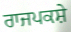
ਰਾਜਪਕਸ਼ੇ